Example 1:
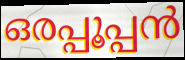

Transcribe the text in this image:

ഒരപ്പൂപ്പൻ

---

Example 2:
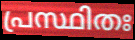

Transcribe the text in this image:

പ്രസ്ഥിതഃ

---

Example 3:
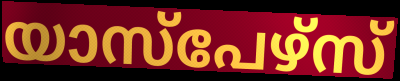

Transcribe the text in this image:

യാസ്പേഴ്സ്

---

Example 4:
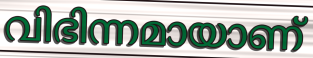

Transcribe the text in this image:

വിഭിന്നമായാണ്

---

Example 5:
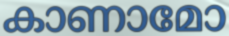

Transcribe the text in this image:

കാണാമോ